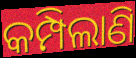
କମ୍ପିଲାଣି